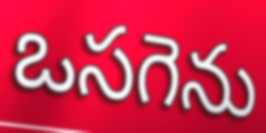
ఒసగెను